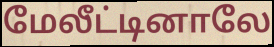
மேலீட்டினாலே